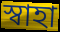
স্বাহা